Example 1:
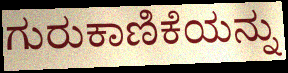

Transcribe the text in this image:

ಗುರುಕಾಣಿಕೆಯನ್ನು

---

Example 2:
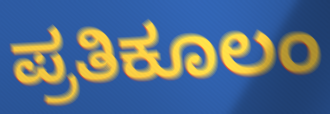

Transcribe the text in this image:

ಪ್ರತಿಕೂಲಂ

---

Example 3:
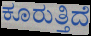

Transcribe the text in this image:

ಕೂರುತ್ತಿದೆ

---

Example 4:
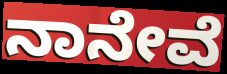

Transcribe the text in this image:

ನಾನೇವೆ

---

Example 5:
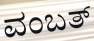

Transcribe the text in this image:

ವಂಬತ್